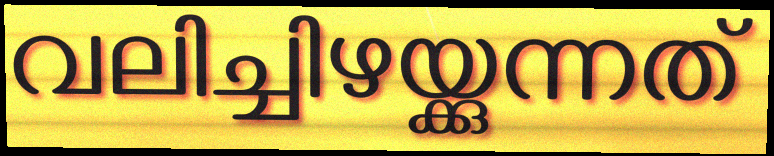
വലിച്ചിഴയ്ക്കുന്നത്